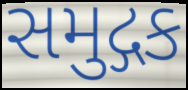
સમુદ્ગક